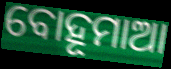
ବୋହୂମାଆ